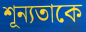
শূন্যতাকে